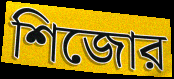
শিজোর